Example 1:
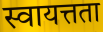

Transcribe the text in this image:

स्वायत्तता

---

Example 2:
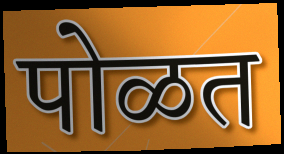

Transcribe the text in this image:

पोळत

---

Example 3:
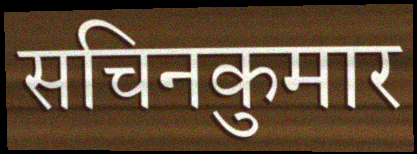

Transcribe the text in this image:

सचिनकुमार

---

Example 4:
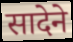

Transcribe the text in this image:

सादेने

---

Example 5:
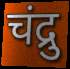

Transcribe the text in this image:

चंद्रु